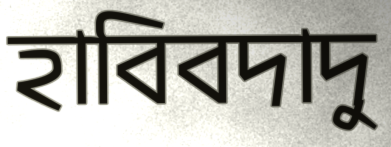
হাবিবদাদু